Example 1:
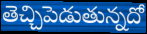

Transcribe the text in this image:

తెచ్చిపెడుతున్నదో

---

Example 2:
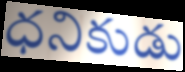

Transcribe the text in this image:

ధనికుడు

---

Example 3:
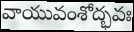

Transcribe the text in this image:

వాయువంశోద్భవః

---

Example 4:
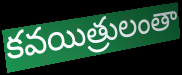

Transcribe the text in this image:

కవయిత్రులంతా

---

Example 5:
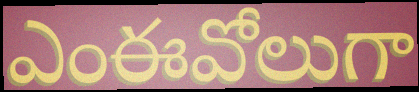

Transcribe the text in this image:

ఎంఈవోలుగా